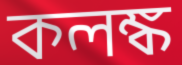
কলঙ্ক